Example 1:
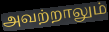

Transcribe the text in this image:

அவற்றாலும்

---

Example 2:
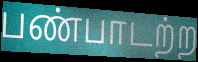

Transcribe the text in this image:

பண்பாடற்ற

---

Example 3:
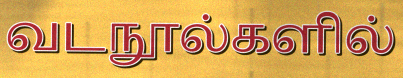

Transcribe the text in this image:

வடநூல்களில்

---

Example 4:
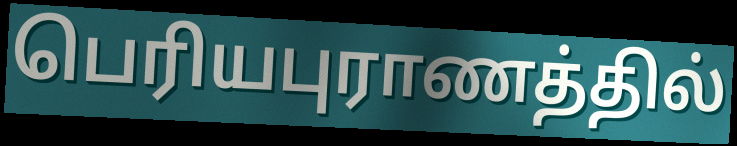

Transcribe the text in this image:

பெரியபுராணத்தில்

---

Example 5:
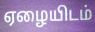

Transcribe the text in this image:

ஏழையிடம்